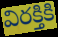
విరక్తికి